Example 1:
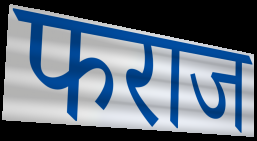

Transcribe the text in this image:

फराज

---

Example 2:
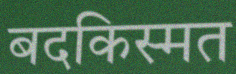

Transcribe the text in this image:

बदकिस्‍मत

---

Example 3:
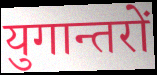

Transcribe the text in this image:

युगान्तरों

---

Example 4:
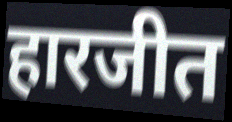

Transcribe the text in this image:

हारजीत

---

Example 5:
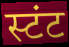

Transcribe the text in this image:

स्टंट